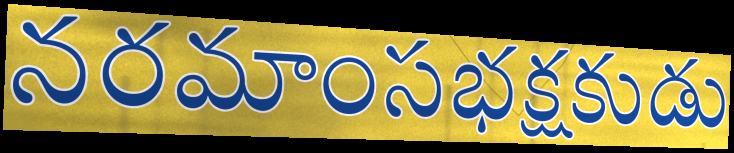
నరమాంసభక్షకుడు